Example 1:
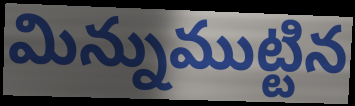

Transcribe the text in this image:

మిన్నుముట్టిన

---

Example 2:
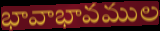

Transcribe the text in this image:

భావాభావముల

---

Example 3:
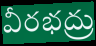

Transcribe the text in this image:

వీరభద్రు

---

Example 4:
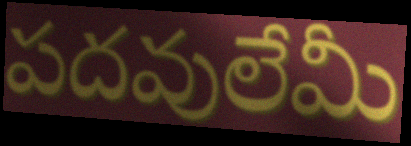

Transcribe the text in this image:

పదవులేమీ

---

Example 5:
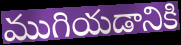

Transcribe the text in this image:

ముగియడానికి